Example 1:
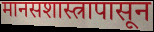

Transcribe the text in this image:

मानसशास्त्रापासून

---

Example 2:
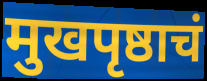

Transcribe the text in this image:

मुखपृष्ठाचं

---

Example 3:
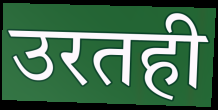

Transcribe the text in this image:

उरतही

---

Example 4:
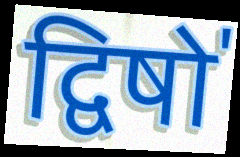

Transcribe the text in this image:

द्विषो॑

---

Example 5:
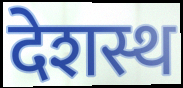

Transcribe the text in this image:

देशस्थ